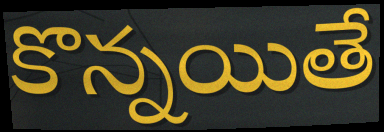
కొన్నయితే